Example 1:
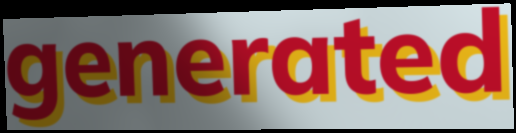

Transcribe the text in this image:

generated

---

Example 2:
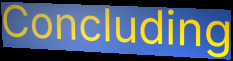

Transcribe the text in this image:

Concluding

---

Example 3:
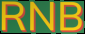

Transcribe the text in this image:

RNB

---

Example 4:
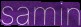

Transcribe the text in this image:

samin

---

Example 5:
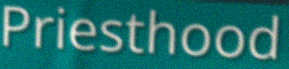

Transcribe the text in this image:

Priesthood